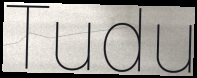
Tudu